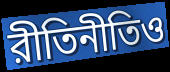
রীতিনীতিও